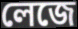
লেজে